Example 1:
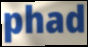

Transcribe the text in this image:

phad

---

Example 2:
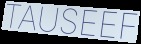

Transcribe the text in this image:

TAUSEEF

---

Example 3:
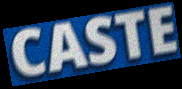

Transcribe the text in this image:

CASTE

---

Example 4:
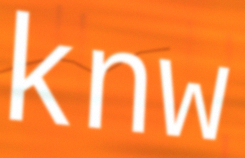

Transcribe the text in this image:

knw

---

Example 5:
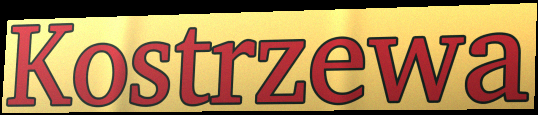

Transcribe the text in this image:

Kostrzewa